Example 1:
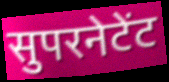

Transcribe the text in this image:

सुपरनेटेंट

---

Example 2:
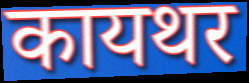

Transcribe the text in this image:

कायथर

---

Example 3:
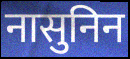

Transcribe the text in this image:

नासुनिन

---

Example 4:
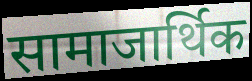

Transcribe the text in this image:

सामाजार्थिक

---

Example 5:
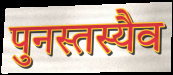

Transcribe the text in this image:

पुनस्तस्यैव